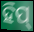
ହିପ୍